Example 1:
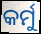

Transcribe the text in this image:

କର୍ମୁ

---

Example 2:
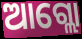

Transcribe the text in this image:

ଆଗ୍ଲୋ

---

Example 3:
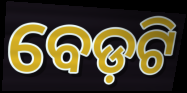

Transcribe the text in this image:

ବେଡ଼ଟି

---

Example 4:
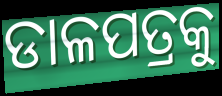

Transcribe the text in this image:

ଡାଳପତ୍ରକୁ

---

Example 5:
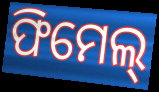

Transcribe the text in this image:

ଫିମେଲ୍